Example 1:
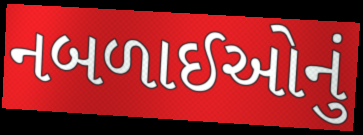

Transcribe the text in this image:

નબળાઈઓનું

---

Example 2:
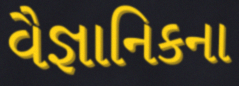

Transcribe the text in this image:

વૈજ્ઞાનિકના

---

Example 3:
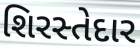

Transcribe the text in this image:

શિરસ્તેદાર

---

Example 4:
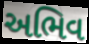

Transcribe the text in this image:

અભિવ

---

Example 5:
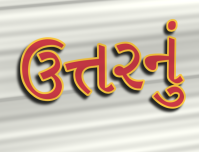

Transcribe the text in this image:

ઉત્તરનું